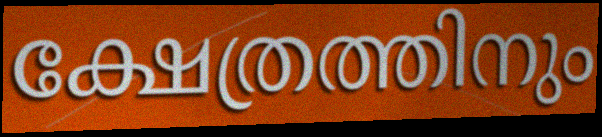
ക്ഷേത്രത്തിനും